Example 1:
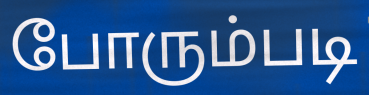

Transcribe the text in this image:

போரும்படி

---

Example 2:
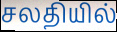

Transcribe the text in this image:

சலதியில்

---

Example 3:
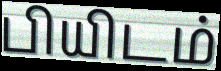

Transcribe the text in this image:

பியிடம்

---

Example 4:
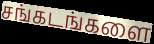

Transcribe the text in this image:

சங்கடங்களை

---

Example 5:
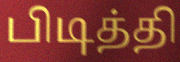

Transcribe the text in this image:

பிடித்தி